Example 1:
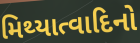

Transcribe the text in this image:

મિથ્યાત્વાદિનો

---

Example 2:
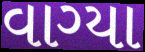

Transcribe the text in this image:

વાગ્યા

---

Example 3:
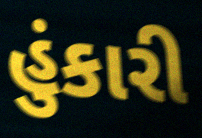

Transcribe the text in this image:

હુંકારી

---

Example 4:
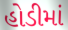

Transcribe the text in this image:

હોડીમાં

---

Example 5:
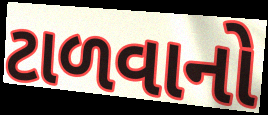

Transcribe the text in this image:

ટાળવાનો